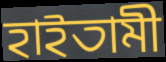
হাইতামী